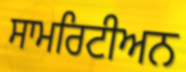
ਸਾਮਰਿਟੀਅਨ